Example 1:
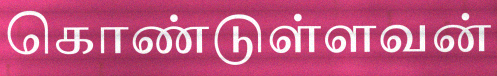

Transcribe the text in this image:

கொண்டுள்ளவன்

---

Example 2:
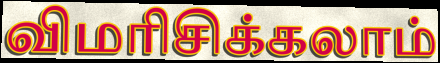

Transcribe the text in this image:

விமரிசிக்கலாம்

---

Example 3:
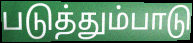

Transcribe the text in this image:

படுத்தும்பாடு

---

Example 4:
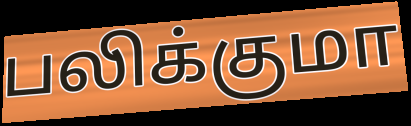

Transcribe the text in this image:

பலிக்குமா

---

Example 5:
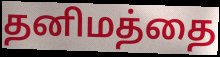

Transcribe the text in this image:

தனிமத்தை